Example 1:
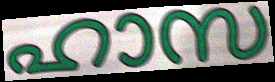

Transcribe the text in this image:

ഹാസ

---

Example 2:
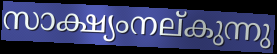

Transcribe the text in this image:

സാക്ഷ്യംനല്കുന്നു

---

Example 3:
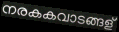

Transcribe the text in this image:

നരകകവാടങ്ങള്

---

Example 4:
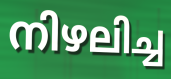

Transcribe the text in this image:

നിഴലിച്ച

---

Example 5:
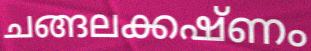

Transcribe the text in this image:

ചങ്ങലക്കഷ്ണം